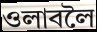
ওলাবলৈ